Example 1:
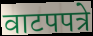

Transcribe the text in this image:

वाटपपत्रे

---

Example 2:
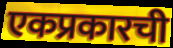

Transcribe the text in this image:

एकप्रकारची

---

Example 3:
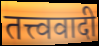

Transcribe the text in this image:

तत्त्ववादी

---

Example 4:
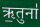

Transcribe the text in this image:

ऋ॒तुना॑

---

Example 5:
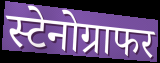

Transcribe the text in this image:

स्टेनोग्राफर